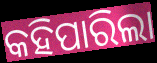
କହିପାରିଲା